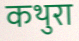
कथुरा